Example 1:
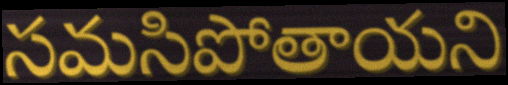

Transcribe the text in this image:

సమసిపోతాయని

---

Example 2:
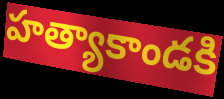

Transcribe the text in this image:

హత్యాకాండకి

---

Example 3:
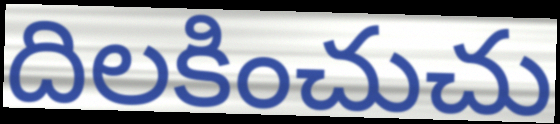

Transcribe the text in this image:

దిలకించుచు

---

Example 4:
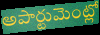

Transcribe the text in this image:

అపార్టుమెంట్లో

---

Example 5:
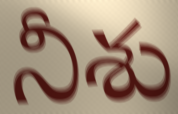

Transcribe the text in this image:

నీశు